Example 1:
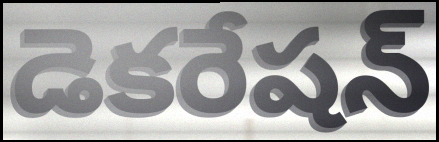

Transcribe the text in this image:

డెకరేషన్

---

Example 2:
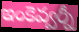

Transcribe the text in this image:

ఇంకెవ్వర్నీ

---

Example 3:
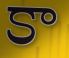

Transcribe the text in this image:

కా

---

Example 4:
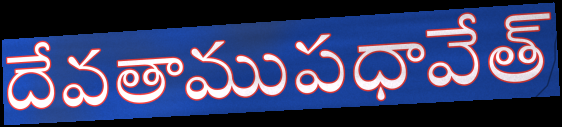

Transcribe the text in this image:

దేవతాముపధావేత్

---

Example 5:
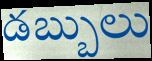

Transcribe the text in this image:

డబ్బులు